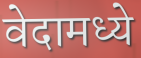
वेदामध्ये